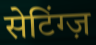
सेटिंग्ज़